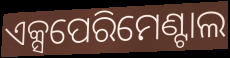
ଏକ୍ସପେରିମେଣ୍ଟାଲ